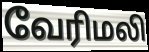
வேரிமலி